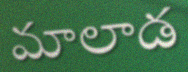
మాలాడ